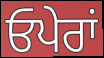
ਓਪੇਰਾਂ